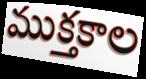
ముక్తకాల